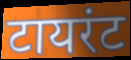
टायरंट